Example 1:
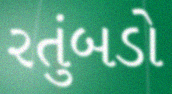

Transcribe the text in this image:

રતુંબડો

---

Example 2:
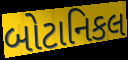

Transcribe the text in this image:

બોટાનિકલ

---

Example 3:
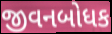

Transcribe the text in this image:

જીવનબોધક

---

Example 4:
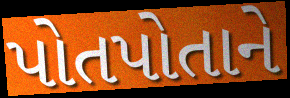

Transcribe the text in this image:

પોતપોતાને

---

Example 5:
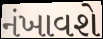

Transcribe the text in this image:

નંખાવશે